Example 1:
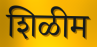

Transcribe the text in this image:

शिळीम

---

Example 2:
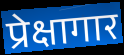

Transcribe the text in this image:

प्रेक्षागार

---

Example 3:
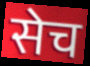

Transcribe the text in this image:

सेच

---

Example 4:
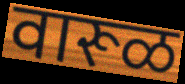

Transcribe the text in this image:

वारूळ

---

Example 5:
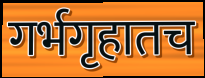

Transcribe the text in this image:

गर्भगृहातच